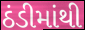
ઠંડીમાંથી